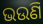
ଭଉଣି